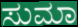
ಸುಮಾ